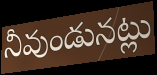
నీవుండునట్లు